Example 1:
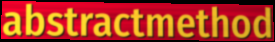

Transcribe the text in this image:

abstractmethod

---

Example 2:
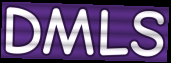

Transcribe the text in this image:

DMLS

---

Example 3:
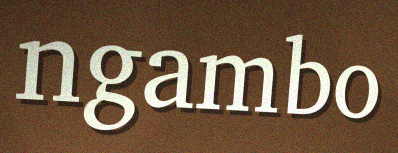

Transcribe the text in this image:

ngambo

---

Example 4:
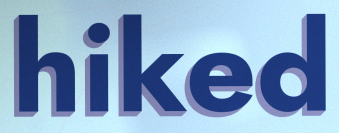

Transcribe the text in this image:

hiked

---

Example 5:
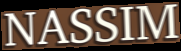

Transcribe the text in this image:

NASSIM